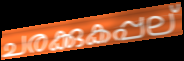
ചരക്കുകപ്പല്